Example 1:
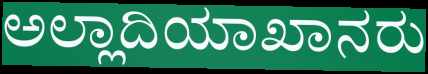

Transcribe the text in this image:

ಅಲ್ಲಾದಿಯಾಖಾನರು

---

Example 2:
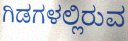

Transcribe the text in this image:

ಗಿಡಗಳಲ್ಲಿರುವ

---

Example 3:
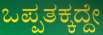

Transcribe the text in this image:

ಒಪ್ಪತಕ್ಕದ್ದೇ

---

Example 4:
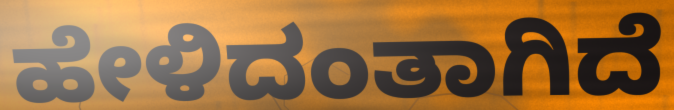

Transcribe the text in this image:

ಹೇಳಿದಂತಾಗಿದೆ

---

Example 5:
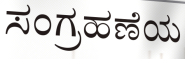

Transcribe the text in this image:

ಸಂಗ್ರಹಣೆಯ